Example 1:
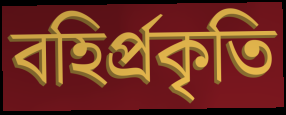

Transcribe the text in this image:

বহির্প্রকৃতি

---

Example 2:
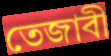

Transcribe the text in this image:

তেজাবী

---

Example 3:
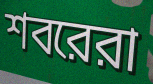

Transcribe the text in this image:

শবরেরা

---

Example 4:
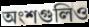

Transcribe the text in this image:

অংশগুলিও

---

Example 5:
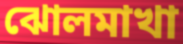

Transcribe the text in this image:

ঝোলমাখা